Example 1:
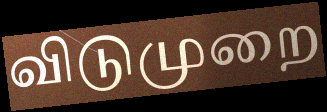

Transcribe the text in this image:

விடுமுறை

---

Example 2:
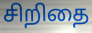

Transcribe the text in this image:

சிறிதை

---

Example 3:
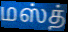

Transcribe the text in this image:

மஸ்த்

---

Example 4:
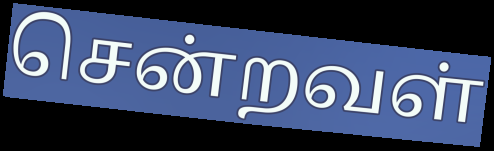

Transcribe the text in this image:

சென்றவள்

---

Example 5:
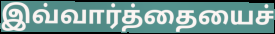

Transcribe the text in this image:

இவ்வார்த்தையைச்